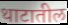
थाटातील